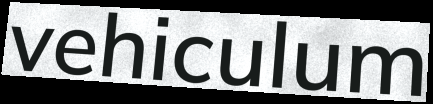
vehiculum